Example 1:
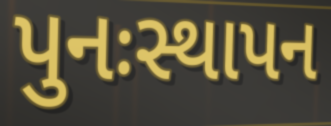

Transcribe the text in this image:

પુનઃસ્થાપન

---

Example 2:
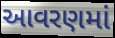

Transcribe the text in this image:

આવરણમાં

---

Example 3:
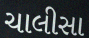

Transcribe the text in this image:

ચાલીસા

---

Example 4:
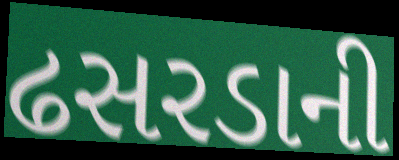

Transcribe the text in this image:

ઢસરડાની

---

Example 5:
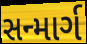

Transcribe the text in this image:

સન્માર્ગ